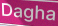
Dagha